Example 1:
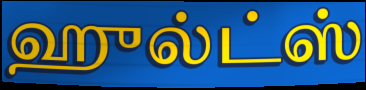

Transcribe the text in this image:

ஹுல்ட்ஸ்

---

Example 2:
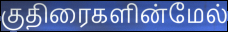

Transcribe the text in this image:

குதிரைகளின்மேல்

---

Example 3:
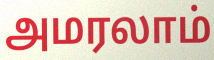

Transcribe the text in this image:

அமரலாம்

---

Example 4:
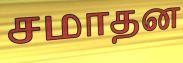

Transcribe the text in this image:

சமாதன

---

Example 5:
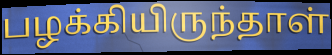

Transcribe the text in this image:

பழக்கியிருந்தாள்